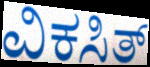
ವಿಕಸಿತ್